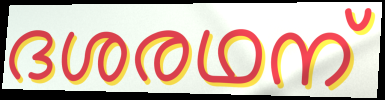
ദശരഥന്